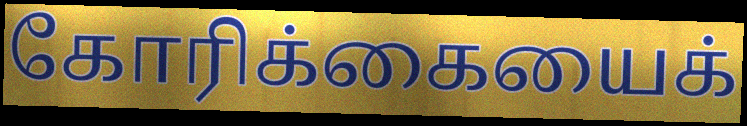
கோரிக்கையைக்